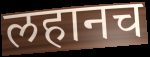
लहानच